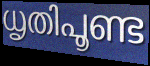
ധൃതിപൂണ്ട